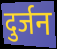
दुर्जन